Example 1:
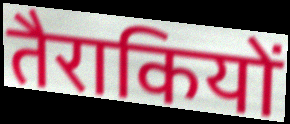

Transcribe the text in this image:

तैराकियों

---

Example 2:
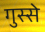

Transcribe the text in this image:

गुस्से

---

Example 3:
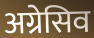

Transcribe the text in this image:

अग्रेसिव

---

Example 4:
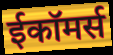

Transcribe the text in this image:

ईकॉमर्स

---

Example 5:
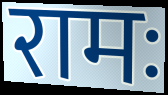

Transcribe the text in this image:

रामः